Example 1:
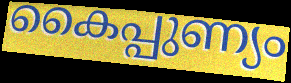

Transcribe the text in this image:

കൈപ്പുണ്യം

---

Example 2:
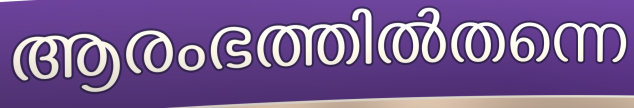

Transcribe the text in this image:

ആരംഭത്തിൽതന്നെ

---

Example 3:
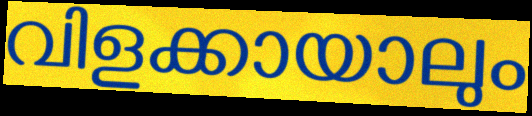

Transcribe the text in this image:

വിളക്കായാലും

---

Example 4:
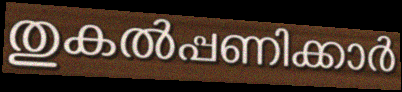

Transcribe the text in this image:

തുകൽപ്പണിക്കാർ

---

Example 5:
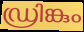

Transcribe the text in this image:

ഡ്രിങ്കും